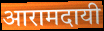
आरामदायी